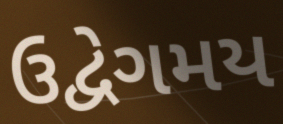
ઉદ્વેગમય